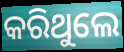
କରିଥୁଲେ